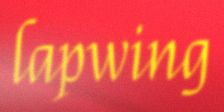
lapwing